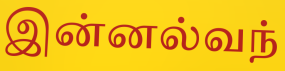
இன்னல்வந்